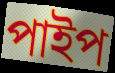
পাইপ